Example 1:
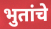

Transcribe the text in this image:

भुतांचे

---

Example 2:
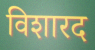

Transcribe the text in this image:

विशारद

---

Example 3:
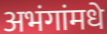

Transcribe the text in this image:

अभंगांमधे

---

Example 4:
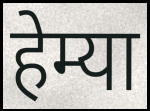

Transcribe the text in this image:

हेम्या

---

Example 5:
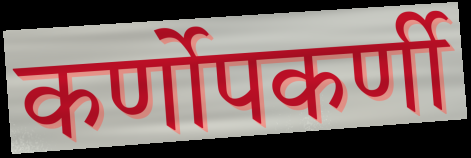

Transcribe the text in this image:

कर्णोपकर्णी